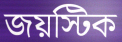
জয়স্টিক